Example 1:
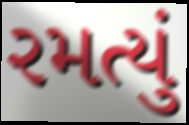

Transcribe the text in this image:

રમત્યું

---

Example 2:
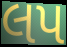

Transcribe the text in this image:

લપ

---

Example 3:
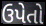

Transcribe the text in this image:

ઉપેતો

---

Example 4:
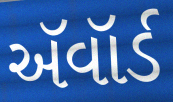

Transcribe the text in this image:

ઍવૉર્ડ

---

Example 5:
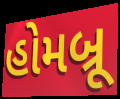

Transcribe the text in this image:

હોમબ્રૂ